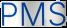
PMS